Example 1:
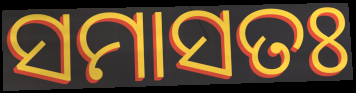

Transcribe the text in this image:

ସମାସତଃ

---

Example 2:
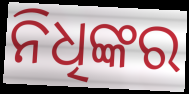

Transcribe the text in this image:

ନିଧିଙ୍କର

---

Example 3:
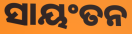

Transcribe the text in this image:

ସାୟଂତନ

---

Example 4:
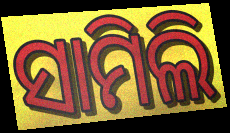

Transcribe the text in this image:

ସାମିଲି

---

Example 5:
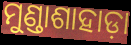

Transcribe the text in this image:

ମୁଣ୍ଡାଶାହାଡ଼ା